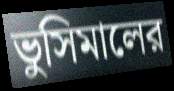
ভুসিমালের